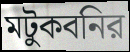
মটুকবনির